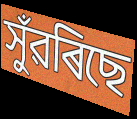
সুঁৱৰিছে